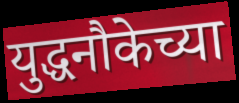
युद्धनौकेच्या